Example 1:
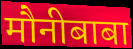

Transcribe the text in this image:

मौनीबाबा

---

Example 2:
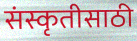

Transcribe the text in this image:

संस्कृतीसाठी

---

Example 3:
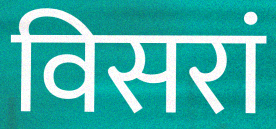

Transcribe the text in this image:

विसरां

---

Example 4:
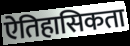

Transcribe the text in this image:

ऐतिहासिकता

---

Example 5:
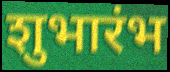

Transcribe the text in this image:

शुभारंभ